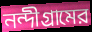
নন্দীগ্রামের